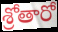
శ్రోతారో